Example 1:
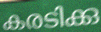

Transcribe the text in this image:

കരടിക്കു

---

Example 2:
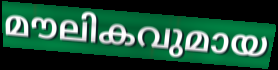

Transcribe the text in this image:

മൗലികവുമായ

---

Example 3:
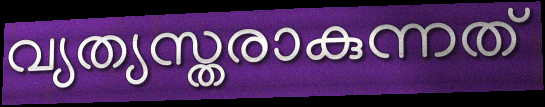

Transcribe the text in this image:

വ്യത്യസ്തരാകുന്നത്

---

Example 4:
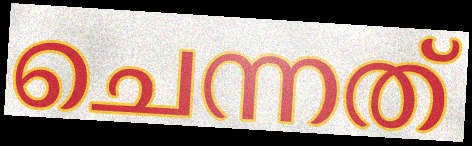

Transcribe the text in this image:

ചെന്നത്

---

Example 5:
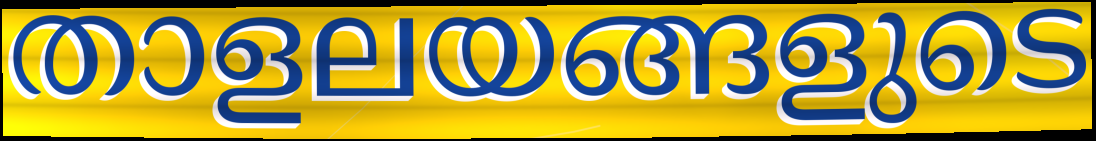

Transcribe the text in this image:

താളലയങ്ങളുടെ